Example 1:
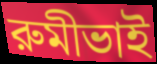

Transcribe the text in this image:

রুমীভাই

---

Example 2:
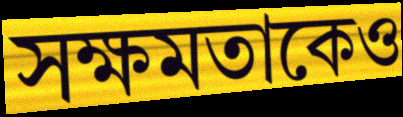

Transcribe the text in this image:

সক্ষমতাকেও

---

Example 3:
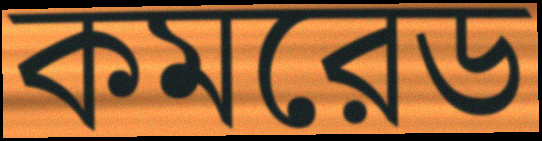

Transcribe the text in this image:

কমরেড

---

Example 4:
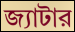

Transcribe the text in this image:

জ্যাটার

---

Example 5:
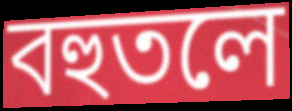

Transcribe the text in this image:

বহুতলে